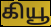
கியூ